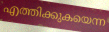
എത്തിക്കുകയെന്ന